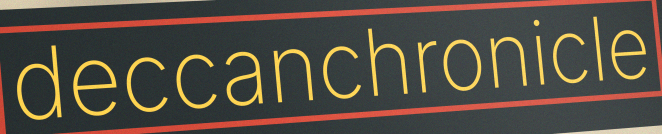
deccanchronicle